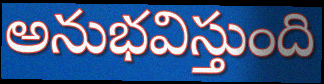
అనుభవిస్తుంది